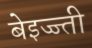
बेइज्ज्ती